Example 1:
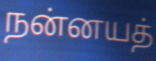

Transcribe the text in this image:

நன்னயத்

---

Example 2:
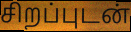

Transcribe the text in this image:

சிறப்புடன்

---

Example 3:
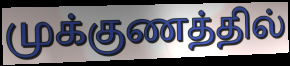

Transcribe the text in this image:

முக்குணத்தில்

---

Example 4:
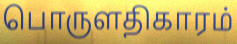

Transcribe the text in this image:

பொருளதிகாரம்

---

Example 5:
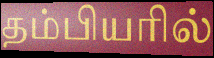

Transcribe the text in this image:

தம்பியரில்